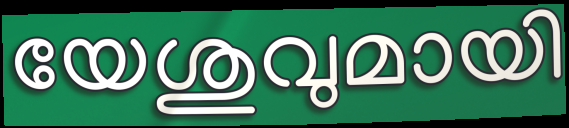
യേശുവുമായി